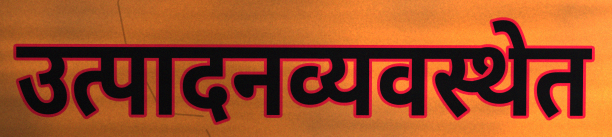
उत्पादनव्यवस्थेत